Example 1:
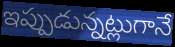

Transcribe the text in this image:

ఇప్పుడున్నట్లుగానే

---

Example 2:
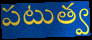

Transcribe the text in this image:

పటుత్వ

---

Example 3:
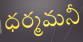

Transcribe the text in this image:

ధర్మమనీ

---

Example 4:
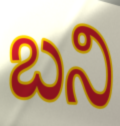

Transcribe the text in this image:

బని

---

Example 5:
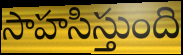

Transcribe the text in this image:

సాహసిస్తుంది